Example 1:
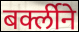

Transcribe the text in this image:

बर्क्लीने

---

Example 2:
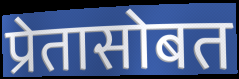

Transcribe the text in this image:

प्रेतासोबत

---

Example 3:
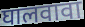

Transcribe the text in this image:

घालवावा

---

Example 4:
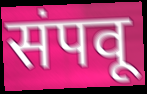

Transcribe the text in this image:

संपवू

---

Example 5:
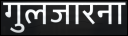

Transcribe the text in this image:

गुलजारना